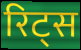
रिट्स